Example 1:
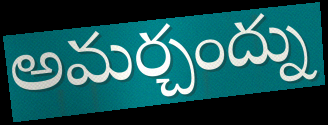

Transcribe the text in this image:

అమర్చంద్ను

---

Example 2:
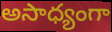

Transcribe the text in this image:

అసాధ్యంగా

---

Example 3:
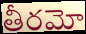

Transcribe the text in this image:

తీరమో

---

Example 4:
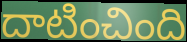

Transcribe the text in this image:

దాటించింది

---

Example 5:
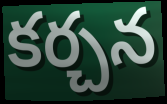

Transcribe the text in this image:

కర్చన